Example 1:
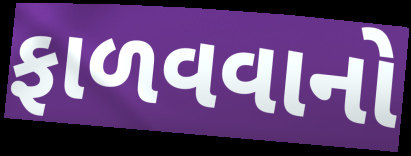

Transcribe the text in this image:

ફાળવવાનો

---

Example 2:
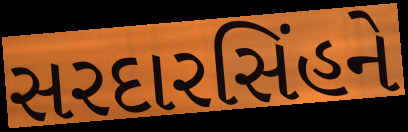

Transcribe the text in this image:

સરદારસિંહને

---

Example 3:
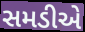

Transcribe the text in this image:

સમડીએ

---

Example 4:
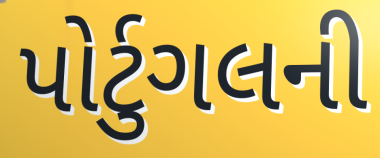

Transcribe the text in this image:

પોર્ટુગલની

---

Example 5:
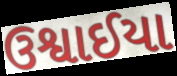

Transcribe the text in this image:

ઉશ્વાઈયા